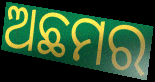
ଅଛମର